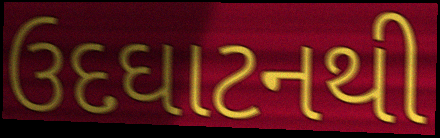
ઉદઘાટનથી